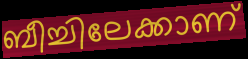
ബീച്ചിലേക്കാണ്